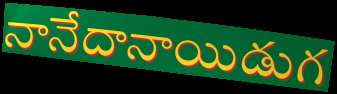
నానేదానాయిడుగ